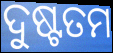
ଦୁଷ୍ଟତମ